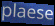
plaese